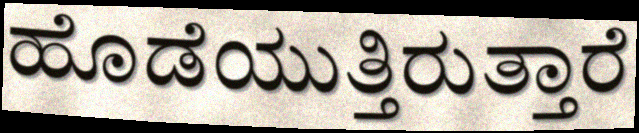
ಹೊಡೆಯುತ್ತಿರುತ್ತಾರೆ